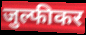
जुल्फीकर